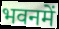
भवनमें